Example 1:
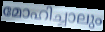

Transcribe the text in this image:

മോഹിച്ചാലും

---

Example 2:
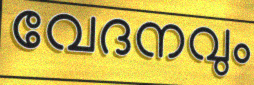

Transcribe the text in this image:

വേദനവും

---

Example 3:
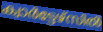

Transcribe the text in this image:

ക്വാർട്ടേഴ്സിൽ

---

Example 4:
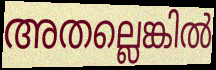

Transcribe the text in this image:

അതല്ലെങ്കിൽ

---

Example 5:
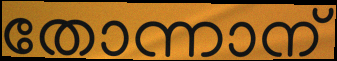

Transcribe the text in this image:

തോന്നാന്